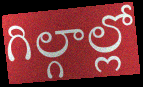
గిల్గాల్లో